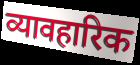
व्यावहारिक